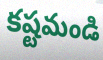
కష్టమండి